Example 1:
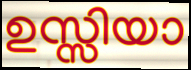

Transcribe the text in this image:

ഉസ്സിയാ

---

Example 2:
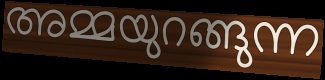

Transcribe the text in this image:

അമ്മയുറങ്ങുന്ന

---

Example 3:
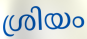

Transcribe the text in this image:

ശ്രിയം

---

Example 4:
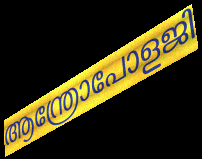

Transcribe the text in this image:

ആന്ത്രോപോളജി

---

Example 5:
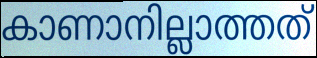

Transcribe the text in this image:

കാണാനില്ലാത്തത്